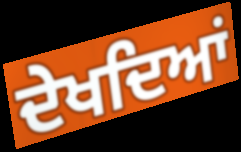
ਦੇਖਦਿਆਂ